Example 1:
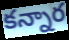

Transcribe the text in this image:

కన్నార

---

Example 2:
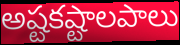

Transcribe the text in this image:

అష్టకష్టాలపాలు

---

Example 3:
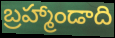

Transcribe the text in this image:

బ్రహ్మాండాది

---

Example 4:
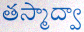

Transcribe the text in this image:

తస్మాద్వా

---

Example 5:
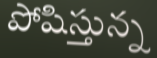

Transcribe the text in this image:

పోషిస్తున్న